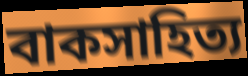
বাকসাহিত্য